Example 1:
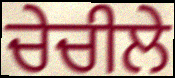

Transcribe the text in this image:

ਚੇਚੀਲੇ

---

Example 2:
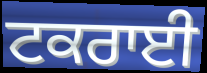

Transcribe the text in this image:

ਟਕਰਾਈ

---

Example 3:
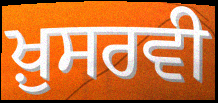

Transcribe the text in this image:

ਖ਼ੁਸਰਵੀ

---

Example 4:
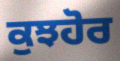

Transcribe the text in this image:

ਕੁਝਹੋਰ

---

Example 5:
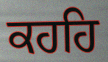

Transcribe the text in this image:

ਕਹਹਿ